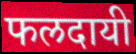
फलदायी